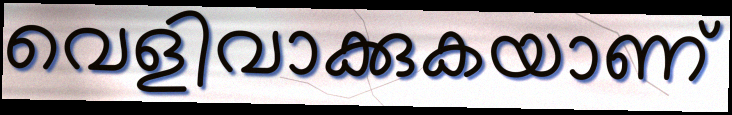
വെളിവാക്കുകയാണ്